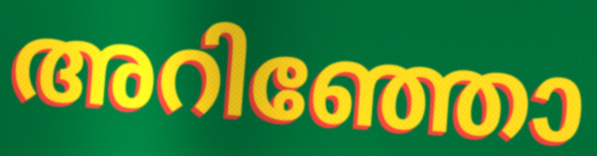
അറിഞ്ഞോ